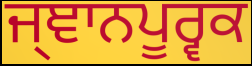
ਜ੍ਞਾਨਪੂਰ੍ਵਕ